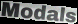
Modals